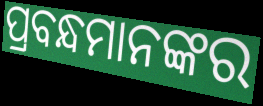
ପ୍ରବନ୍ଧମାନଙ୍କର